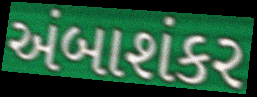
અંબાશંકર